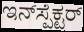
ಇನ್‌ಸ್ಪೆಕ್ಟರ್